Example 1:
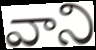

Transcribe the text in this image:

వాని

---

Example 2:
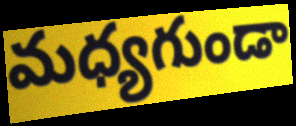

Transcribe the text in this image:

మధ్యగుండా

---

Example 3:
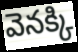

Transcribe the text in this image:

వెనక్కి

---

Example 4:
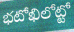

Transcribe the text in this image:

భటోఖిలోట్టో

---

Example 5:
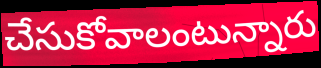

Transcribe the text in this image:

చేసుకోవాలంటున్నారు